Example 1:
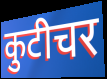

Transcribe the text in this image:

कुटीचर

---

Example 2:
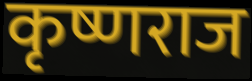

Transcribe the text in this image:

कृष्णराज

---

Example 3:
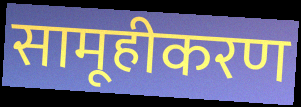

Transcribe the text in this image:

सामूहीकरण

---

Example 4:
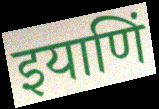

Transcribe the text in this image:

इयाणिं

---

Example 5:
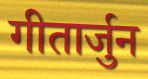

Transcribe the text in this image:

गीतार्जुन